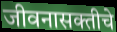
जीवनासक्तीचे